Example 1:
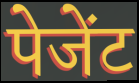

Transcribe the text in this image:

पेजेंट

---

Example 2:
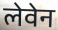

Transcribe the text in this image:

लेवेन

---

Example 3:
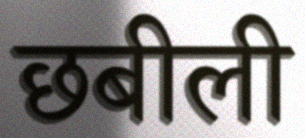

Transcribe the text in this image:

छबीली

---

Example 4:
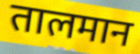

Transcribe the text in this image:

तालमान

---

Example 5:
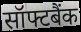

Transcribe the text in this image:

सॉफ्टबैंक